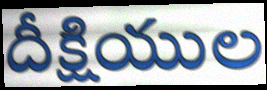
దీక్షియుల